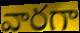
వారగా